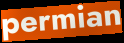
permian